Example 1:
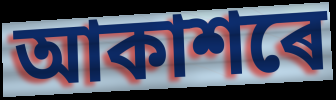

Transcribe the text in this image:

আকাশৰে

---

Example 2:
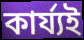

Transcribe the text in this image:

কাৰ্য্যই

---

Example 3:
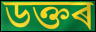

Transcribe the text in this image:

ডক্তৰ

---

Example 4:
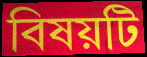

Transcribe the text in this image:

বিষয়টি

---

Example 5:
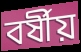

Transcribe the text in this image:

বৰ্ষীয়